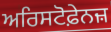
ਅਰਿਸਟੋਫ਼ੇਨਜ਼